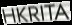
HKRITA